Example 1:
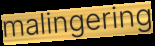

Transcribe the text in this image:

malingering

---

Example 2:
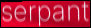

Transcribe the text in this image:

serpant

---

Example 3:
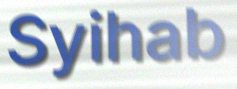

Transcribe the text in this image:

Syihab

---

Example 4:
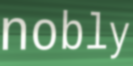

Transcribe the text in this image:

nobly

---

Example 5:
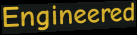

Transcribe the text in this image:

Engineered